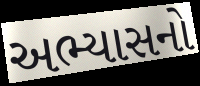
અભ્યાસનો